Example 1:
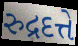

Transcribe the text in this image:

રુદ્રદત્તે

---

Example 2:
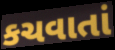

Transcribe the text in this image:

કચવાતાં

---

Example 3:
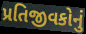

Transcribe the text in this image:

પ્રતિજીવકોનું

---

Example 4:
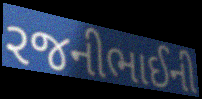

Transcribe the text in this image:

રજનીભાઈની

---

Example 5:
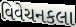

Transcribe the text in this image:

વિવેચનકલા